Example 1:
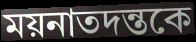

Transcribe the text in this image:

ময়নাতদন্তকে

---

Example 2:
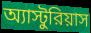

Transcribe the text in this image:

অ্যাস্টুরিয়াস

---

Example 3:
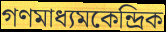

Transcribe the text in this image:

গণমাধ্যমকেন্দ্রিক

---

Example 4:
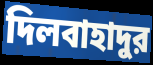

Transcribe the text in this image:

দিলবাহাদুর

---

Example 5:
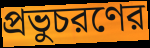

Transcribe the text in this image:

প্রভুচরণের